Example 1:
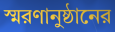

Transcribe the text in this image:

স্মরণানুষ্ঠানের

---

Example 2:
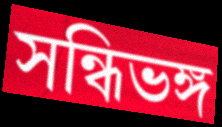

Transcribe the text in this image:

সন্ধিভঙ্গ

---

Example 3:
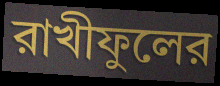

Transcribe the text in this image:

রাখীফুলের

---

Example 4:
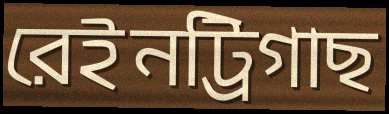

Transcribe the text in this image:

রেইনট্রিগাছ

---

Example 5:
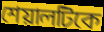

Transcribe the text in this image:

শেয়ালটিকে